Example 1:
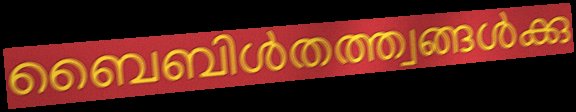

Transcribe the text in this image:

ബൈബിൾതത്ത്വങ്ങൾക്കു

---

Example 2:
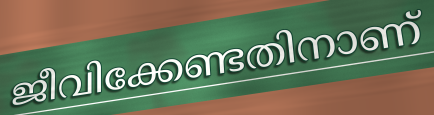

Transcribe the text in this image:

ജീവിക്കേണ്ടതിനാണ്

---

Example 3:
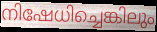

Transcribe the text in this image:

നിഷേധിച്ചെങ്കിലും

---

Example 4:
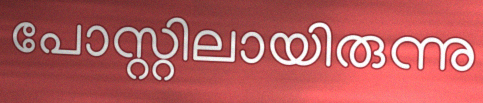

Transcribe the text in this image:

പോസ്റ്റിലായിരുന്നു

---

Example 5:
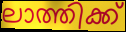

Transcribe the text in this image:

ലാത്തിക്ക്